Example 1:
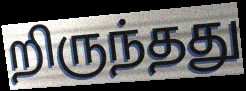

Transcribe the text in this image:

றிருந்தது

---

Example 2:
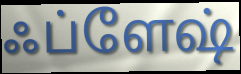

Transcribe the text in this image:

ஃப்ளேஷ்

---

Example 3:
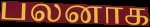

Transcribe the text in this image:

பலனாக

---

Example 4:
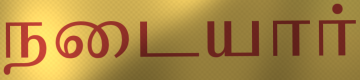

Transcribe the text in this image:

நடையார்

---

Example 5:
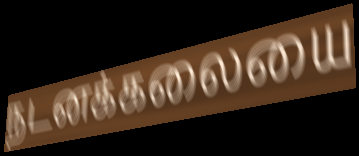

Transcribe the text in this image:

நடனக்கலையை